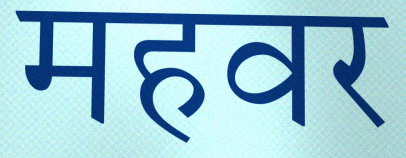
महवर